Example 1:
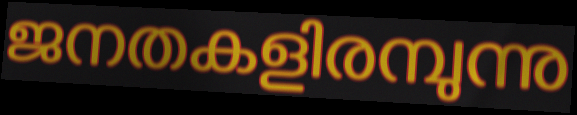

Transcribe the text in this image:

ജനതകളിരമ്പുന്നു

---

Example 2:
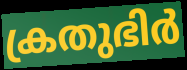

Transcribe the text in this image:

ക്രതുഭിർ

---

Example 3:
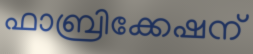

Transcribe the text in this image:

ഫാബ്രിക്കേഷന്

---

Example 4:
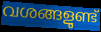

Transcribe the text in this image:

വശങ്ങളുണ്ട്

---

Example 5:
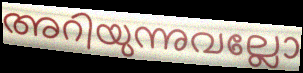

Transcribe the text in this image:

അറിയുന്നുവല്ലോ